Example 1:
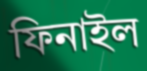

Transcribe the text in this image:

ফিনাইল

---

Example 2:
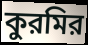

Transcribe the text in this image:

কুরমির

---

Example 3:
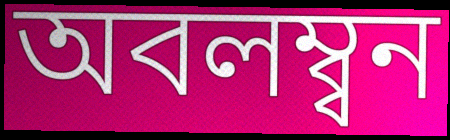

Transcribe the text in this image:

অবলম্ব্বন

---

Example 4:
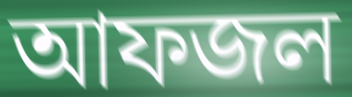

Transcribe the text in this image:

আফজল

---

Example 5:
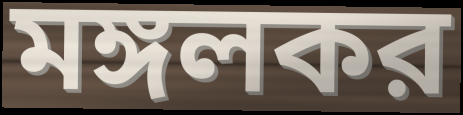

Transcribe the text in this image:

মঙ্গলকর